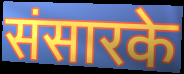
संसारके